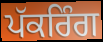
ਪੱਕਰਿੰਗ